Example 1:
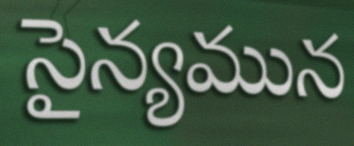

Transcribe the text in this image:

సైన్యమున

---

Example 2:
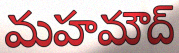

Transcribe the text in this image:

మహమౌద్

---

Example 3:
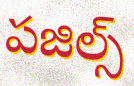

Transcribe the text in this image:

పజిల్స్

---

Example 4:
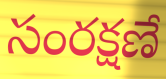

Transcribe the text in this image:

సంరక్షణే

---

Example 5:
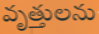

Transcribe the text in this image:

వృత్తులను